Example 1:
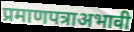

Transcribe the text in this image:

प्रमाणपत्राअभावी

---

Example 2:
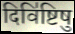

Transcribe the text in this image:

दिवि॑ष्टिषु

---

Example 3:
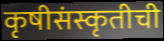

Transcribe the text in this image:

कृषीसंस्कृतीची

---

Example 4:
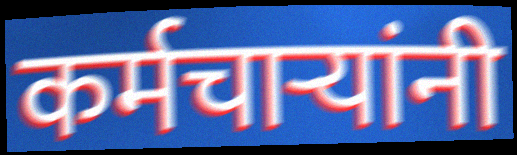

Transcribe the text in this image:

कर्मचाऱ्यांनी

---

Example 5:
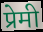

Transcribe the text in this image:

प्रेमी